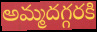
అమ్మదగ్గరకి